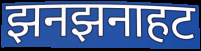
झनझनाहट